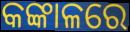
କଙ୍କାଳରେ